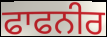
ਫਾਫਨੀਰ